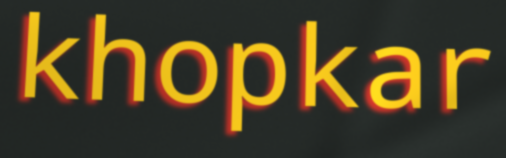
khopkar